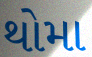
થોમા